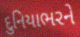
દુનિયાભરને